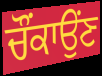
ਚੌਂਕਾਉਂਣ